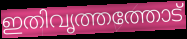
ഇതിവൃത്തത്തോട്